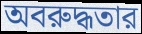
অবরুদ্ধতার